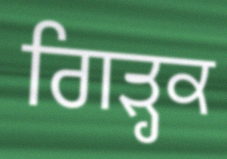
ਗਿੜ੍ਹਕ